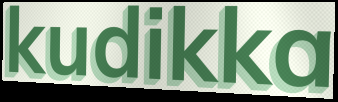
kudikka